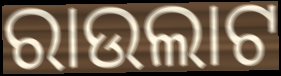
ରାଉଲାଟ